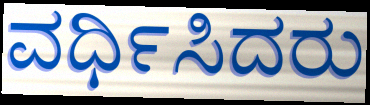
ವರ್ಧಿಸಿದರು